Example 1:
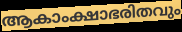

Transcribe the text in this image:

ആകാംക്ഷാഭരിതവും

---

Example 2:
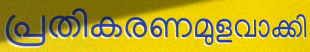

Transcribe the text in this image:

പ്രതികരണമുളവാക്കി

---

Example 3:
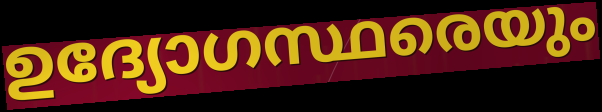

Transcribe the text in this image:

ഉദ്യോഗസ്ഥരെയും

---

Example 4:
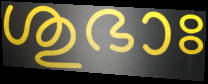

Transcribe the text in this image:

ശുഭാഃ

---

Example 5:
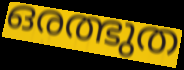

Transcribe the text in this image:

ഒരത്ഭുത